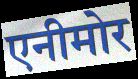
एनीमोर